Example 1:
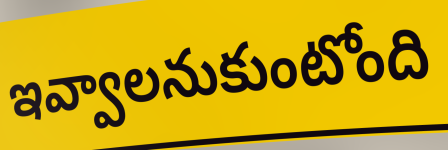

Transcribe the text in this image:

ఇవ్వాలనుకుంటోంది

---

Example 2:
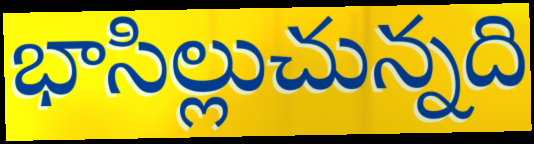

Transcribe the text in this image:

భాసిల్లుచున్నది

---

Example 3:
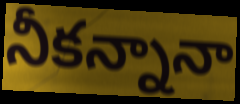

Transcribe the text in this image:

నీకన్నానా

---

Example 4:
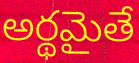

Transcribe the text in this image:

అర్థమైతే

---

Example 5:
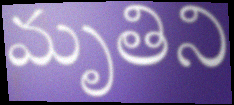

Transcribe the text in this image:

మృతిని